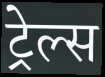
ट्रेल्स